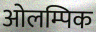
ओलम्पिक